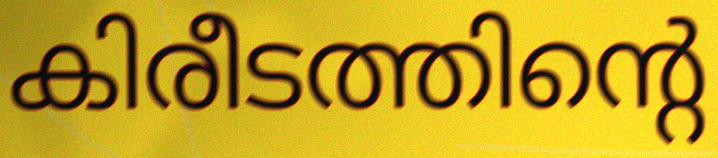
കിരീടത്തിന്റെ